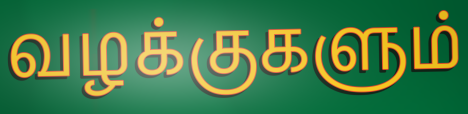
வழக்குகளும்